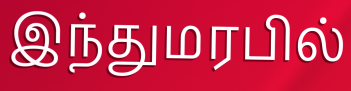
இந்துமரபில்